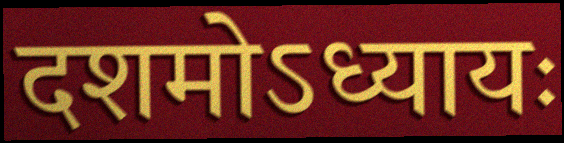
दशमोऽध्यायः